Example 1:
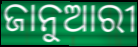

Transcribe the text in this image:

ଜାନୁଆରୀ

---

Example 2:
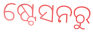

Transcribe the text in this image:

ଷ୍ଟେସନରୁ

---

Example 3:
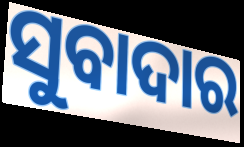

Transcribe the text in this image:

ସୁବାଦାର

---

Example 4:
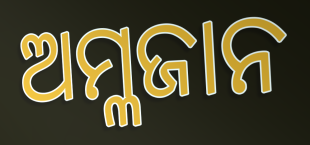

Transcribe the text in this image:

ଅମ୍ଳଜାନ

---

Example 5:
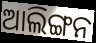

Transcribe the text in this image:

ଆଲିଙ୍ଗନ